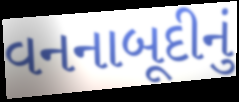
વનનાબૂદીનું